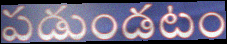
పడుండటం